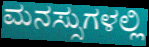
ಮನಸ್ಸುಗಳಲ್ಲಿ